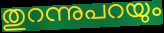
തുറന്നുപറയും